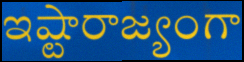
ఇష్టారాజ్యంగా